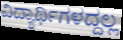
ವಿದ್ಯಾರ್ಥಿಗಳದ್ದಲ್ಲ